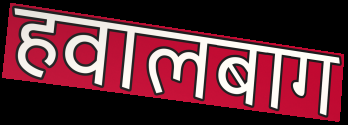
हवालबाग